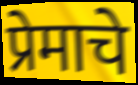
प्रेमाचे